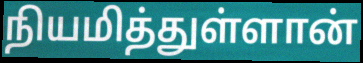
நியமித்துள்ளான்